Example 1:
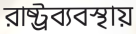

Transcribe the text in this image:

রাষ্ট্রব্যবস্থায়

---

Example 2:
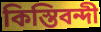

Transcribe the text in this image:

কিস্তিবন্দী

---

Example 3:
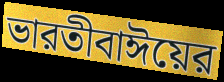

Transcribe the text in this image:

ভারতীবাঈয়ের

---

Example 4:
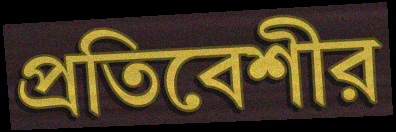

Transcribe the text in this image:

প্রতিবেশীর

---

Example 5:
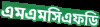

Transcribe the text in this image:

এমএমসিএফডি